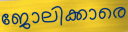
ജോലിക്കാരെ